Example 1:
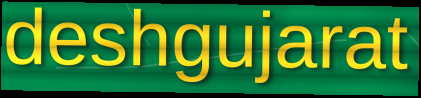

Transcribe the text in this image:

deshgujarat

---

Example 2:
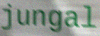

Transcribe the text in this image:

jungal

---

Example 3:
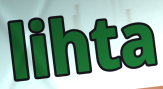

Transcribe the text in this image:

lihta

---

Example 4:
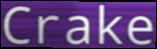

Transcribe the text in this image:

Crake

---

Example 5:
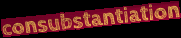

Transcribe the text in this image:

consubstantiation